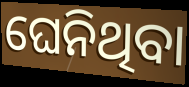
ଘେନିଥିବା